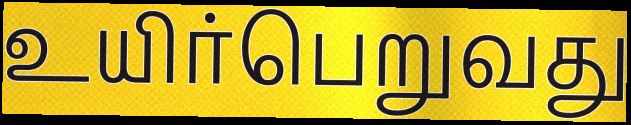
உயிர்பெறுவது